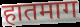
हातमाग